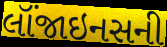
લૉંજાઇનસની